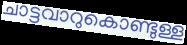
ചാട്ടവാറുകൊണ്ടുള്ള